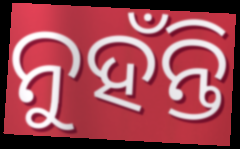
ନୁହଁନ୍ତି